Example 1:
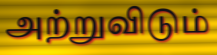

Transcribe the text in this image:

அற்றுவிடும்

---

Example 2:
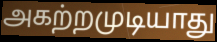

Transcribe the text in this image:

அகற்றமுடியாது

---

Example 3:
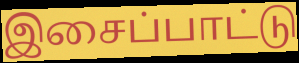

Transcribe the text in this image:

இசைப்பாட்டு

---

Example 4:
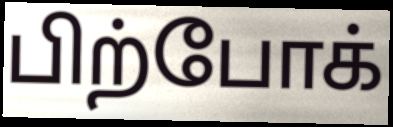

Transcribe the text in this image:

பிற்போக்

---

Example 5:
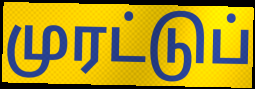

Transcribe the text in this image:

முரட்டுப்